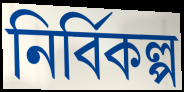
নির্বিকল্প